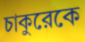
চাকুরেকে